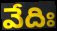
వేదిః